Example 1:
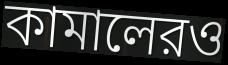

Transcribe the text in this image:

কামালেরও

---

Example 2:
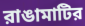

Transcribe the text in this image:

রাঙামাটির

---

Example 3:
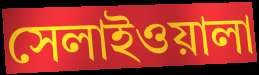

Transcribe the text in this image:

সেলাইওয়ালা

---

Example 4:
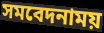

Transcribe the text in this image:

সমবেদনাময়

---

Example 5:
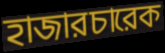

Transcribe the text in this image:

হাজারচারেক